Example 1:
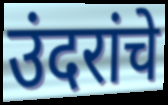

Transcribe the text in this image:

उंदरांचे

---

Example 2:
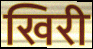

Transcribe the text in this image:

खिरी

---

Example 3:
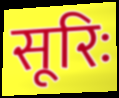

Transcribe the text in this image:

सूरिः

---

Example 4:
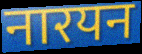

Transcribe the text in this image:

नारयन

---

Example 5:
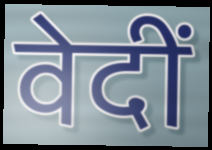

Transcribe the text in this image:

वेदीं